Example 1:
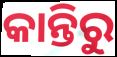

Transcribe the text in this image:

କାନ୍ତିରୁ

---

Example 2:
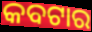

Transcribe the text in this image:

କବଟାର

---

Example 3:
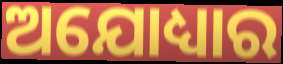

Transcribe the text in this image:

ଅଯୋଧ୍ୟାର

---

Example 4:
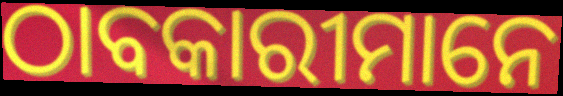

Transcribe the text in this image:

ଠାବକାରୀମାନେ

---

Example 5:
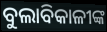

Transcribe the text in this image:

ବୁଲାବିକାଳୀଙ୍କ